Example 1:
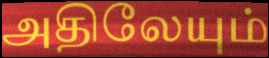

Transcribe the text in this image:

அதிலேயும்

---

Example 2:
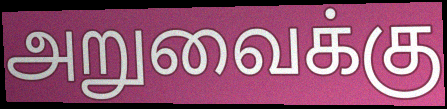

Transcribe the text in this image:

அறுவைக்கு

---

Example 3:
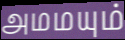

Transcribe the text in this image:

அமமயும்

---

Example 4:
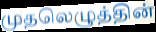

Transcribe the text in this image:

முதலெழுத்தின்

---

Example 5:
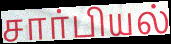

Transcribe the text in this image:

சார்பியல்